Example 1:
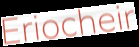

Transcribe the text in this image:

Eriocheir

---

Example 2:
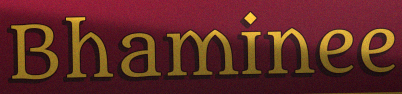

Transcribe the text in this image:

Bhaminee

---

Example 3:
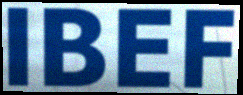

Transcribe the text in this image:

IBEF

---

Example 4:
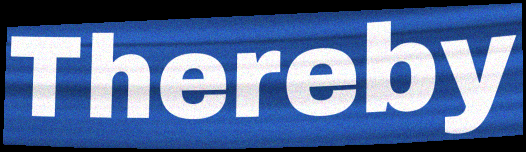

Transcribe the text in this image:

Thereby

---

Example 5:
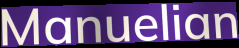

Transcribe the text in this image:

Manuelian